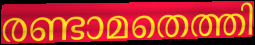
രണ്ടാമതെത്തി